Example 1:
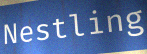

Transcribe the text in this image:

Nestling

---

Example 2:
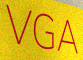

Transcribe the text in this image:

VGA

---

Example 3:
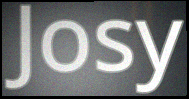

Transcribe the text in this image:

Josy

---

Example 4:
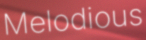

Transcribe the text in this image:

Melodious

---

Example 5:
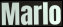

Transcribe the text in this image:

Marlo